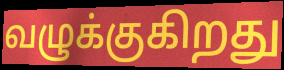
வழுக்குகிறது